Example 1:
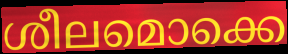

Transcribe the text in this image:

ശീലമൊക്കെ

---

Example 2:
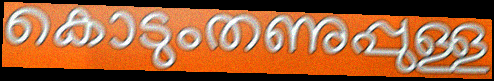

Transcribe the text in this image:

കൊടുംതണുപ്പുള്ള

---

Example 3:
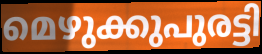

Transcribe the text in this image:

മെഴുക്കുപുരട്ടി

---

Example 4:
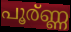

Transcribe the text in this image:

പൂര്ണ്ണ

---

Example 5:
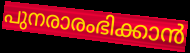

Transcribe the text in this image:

പുനരാരംഭിക്കാൻ